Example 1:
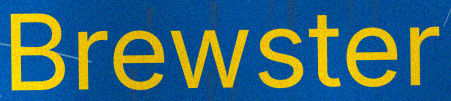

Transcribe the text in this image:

Brewster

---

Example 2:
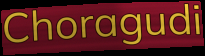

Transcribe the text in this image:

Choragudi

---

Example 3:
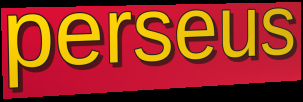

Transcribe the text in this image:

perseus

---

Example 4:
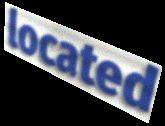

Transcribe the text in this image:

located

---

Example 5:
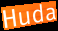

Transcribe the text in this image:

Huda